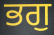
ਭਗੁ